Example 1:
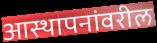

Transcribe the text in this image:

आस्थापनांवरील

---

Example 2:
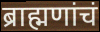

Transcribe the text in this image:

ब्राह्मणांचं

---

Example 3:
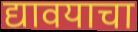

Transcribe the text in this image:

द्यावयाचा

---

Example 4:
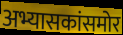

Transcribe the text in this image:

अभ्यासकांसमोर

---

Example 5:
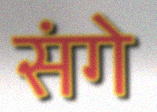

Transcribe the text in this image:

संगे